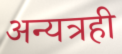
अन्यत्रही